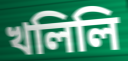
খলিলি